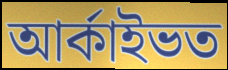
আৰ্কাইভত